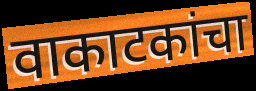
वाकाटकांचा